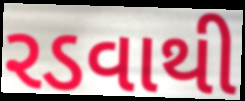
રડવાથી